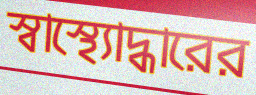
স্বাস্থ্যোদ্ধারের